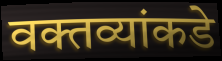
वक्तव्यांकडे